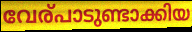
വേര്പാടുണ്ടാക്കിയ